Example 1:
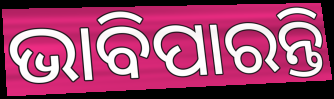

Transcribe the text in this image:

ଭାବିପାରନ୍ତି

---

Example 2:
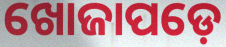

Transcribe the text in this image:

ଖୋଜାପଡ଼େ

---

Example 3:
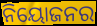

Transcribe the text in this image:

ନିୟୋଜନର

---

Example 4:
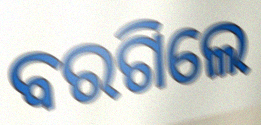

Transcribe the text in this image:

ବରଗିଲେ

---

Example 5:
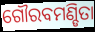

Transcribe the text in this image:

ଗୌରବମଣ୍ଡିତା